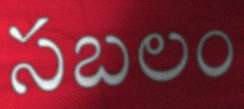
సబలం